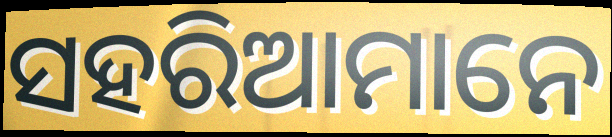
ସହରିଆମାନେ